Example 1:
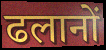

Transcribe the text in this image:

ढलानों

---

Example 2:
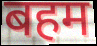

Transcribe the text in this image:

बहम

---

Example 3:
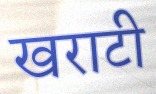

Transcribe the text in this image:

खराटी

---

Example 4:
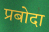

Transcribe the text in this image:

प्रबोदा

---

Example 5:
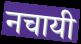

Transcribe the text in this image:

नचायी